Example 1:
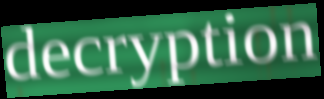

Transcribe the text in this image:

decryption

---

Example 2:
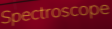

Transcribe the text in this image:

Spectroscope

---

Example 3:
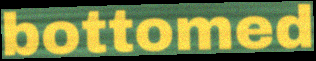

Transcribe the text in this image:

bottomed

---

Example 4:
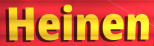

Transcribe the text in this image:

Heinen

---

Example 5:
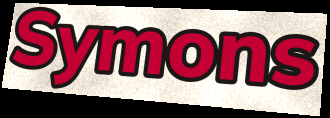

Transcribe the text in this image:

Symons